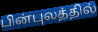
பின்புலத்தில்